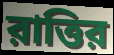
রাত্তির